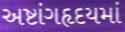
અષ્ટાંગહૃદયમાં